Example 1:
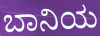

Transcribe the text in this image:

ಬಾನಿಯ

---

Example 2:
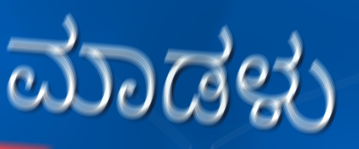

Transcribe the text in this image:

ಮಾಡಳು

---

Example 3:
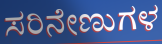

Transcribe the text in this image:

ಸರಿನೇಣುಗಳ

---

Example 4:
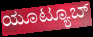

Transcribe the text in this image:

ಯೂಟ್ಯೂಬ್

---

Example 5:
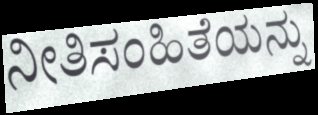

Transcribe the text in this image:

ನೀತಿಸಂಹಿತೆಯನ್ನು